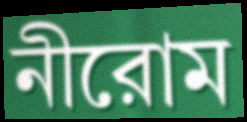
নীরোম